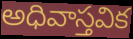
అధివాస్తవిక